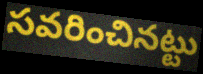
సవరించినట్టు